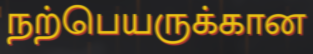
நற்பெயருக்கான